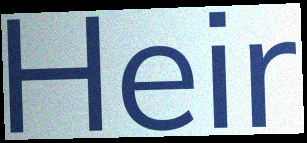
Heir